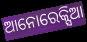
ଆନୋରେକ୍ସିଆ